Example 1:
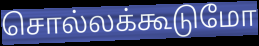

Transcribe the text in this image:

சொல்லக்கூடுமோ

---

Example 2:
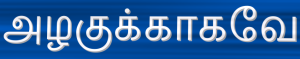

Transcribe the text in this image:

அழகுக்காகவே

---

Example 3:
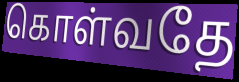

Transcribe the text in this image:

கொள்வதே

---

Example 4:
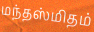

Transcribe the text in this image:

மந்தஸ்மிதம்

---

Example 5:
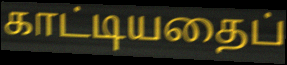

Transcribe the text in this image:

காட்டியதைப்